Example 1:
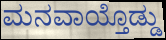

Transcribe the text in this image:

ಮನವಾಯ್ತೊಡ್ಡು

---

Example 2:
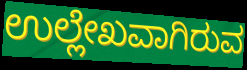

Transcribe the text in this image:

ಉಲ್ಲೇಖವಾಗಿರುವ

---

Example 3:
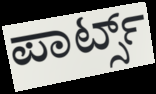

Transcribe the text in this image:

ಪಾರ್ಟ್ಸ್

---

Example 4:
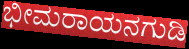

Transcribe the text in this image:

ಭೀಮರಾಯನಗುಡಿ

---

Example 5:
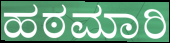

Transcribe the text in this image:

ಹಠಮಾರಿ